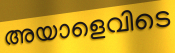
അയാളെവിടെ